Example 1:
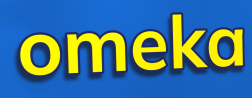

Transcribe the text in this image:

omeka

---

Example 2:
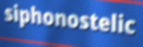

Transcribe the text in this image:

siphonostelic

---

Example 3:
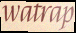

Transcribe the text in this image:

watrap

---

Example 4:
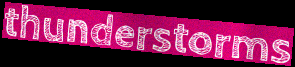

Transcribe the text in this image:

thunderstorms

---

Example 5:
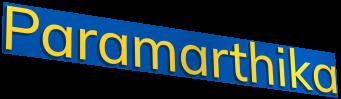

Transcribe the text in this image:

Paramarthika